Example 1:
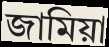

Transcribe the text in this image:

জামিয়া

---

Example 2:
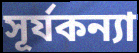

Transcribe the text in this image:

সূর্যকন্যা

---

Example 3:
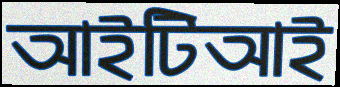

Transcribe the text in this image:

আইটিআই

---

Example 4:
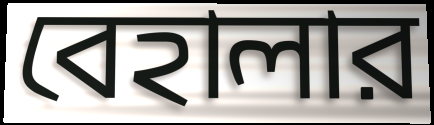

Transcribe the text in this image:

বেহালার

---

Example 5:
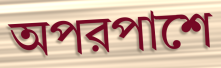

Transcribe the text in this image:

অপরপাশে